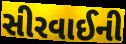
સીરવાઈની